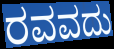
ರವವದು